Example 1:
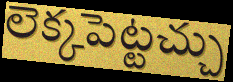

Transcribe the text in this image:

లెక్కపెట్టచ్చు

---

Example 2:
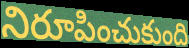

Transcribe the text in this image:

నిరూపించుకుంది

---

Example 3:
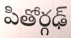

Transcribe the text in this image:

పితోర్గఢ్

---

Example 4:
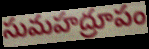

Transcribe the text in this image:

సుమహద్రూపం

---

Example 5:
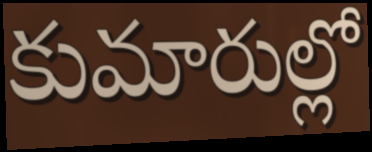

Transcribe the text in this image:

కుమారుల్లో